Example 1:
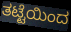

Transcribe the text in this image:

ತಟ್ಟೆಯಿಂದ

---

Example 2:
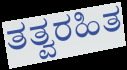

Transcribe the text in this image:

ತತ್ವರಹಿತ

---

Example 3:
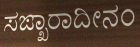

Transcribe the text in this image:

ಸಙ್ಖಾರಾದೀನಂ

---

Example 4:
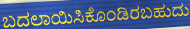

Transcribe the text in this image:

ಬದಲಾಯಿಸಿಕೊಂಡಿರಬಹುದು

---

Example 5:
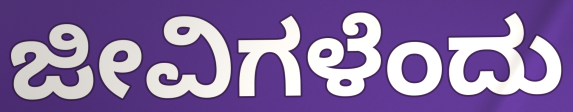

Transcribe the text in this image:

ಜೀವಿಗಳೆಂದು